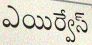
ఎయిర్వేస్